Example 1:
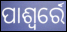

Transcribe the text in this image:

ପାଶ୍ୱର୍ରେ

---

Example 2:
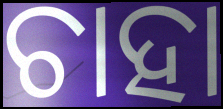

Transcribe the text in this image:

ଚାହା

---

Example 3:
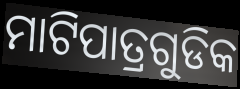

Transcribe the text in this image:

ମାଟିପାତ୍ରଗୁଡିକ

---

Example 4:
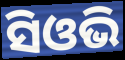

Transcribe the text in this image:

ସିଓଭି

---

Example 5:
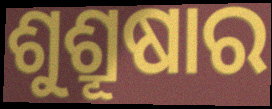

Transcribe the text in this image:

ଶୁଶ୍ରୂଷାର